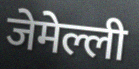
जेमेल्ली